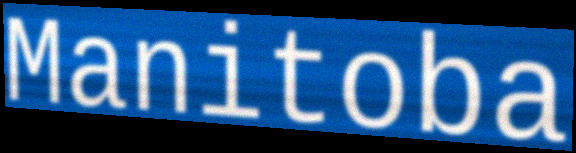
Manitoba